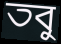
তবু